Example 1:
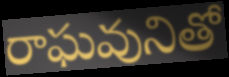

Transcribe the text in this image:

రాఘవునితో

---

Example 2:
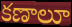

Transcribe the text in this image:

కణాలూ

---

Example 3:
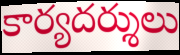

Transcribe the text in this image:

కార్యదర్శులు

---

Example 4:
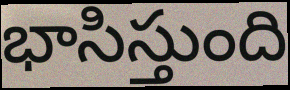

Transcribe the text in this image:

భాసిస్తుంది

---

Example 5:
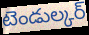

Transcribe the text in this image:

టెండుల్కర్